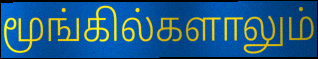
மூங்கில்களாலும்